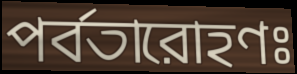
পর্বতারোহণঃ